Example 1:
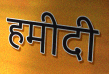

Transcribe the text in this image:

हमीदी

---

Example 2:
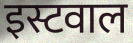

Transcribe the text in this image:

इस्टवाल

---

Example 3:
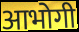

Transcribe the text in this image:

आभोगी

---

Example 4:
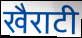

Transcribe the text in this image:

खैराटी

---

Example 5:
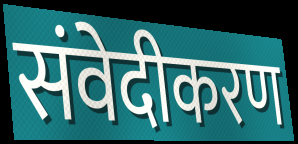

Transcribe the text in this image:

संवेदीकरण